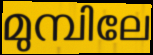
മുമ്പിലേ